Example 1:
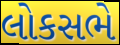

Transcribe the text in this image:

લોકસભે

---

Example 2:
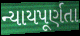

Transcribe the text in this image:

ન્યાયપૂર્ણતા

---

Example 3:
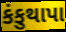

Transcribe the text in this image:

કંકુથાપા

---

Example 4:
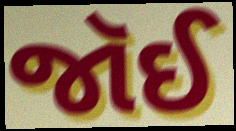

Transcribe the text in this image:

જૉઈ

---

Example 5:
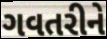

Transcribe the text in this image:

ગવતરીને